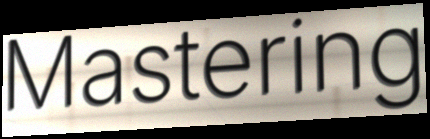
Mastering